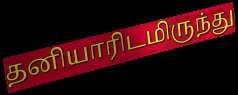
தனியாரிடமிருந்து